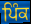
ਪਿੰਕ